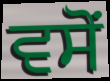
ਵਸੋਂ